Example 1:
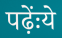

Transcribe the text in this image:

पढ़ेंःये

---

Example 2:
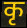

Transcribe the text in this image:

कृ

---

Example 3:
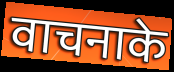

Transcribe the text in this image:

वाचनाके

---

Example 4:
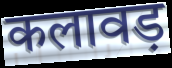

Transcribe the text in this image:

कलावड़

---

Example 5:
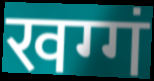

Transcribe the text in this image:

खग्गं